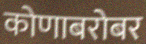
कोणाबरोबर